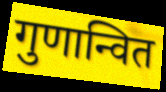
गुणान्वित